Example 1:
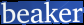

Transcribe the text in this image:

beaker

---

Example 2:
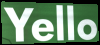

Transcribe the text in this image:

Yello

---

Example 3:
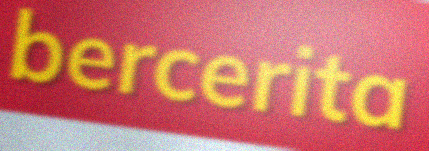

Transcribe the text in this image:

bercerita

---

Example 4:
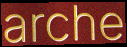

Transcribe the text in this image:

arche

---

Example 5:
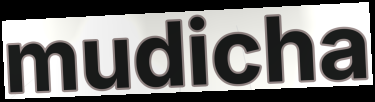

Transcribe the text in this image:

mudicha